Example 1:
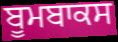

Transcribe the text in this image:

ਬੂਮਬਾਕਸ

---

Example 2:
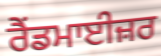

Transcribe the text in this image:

ਰੈਂਡਮਾਈਜ਼ਰ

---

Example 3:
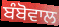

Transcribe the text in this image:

ਬੰਬੋਵਾਲ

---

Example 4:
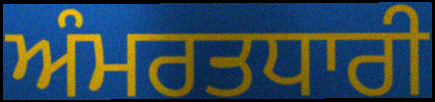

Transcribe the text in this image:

ਅੰਮਰਤਧਾਰੀ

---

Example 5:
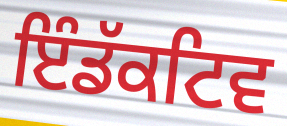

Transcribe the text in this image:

ਇੰਡੱਕਟਿਵ